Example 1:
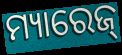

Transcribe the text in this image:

ମ୍ୟାରେଜ୍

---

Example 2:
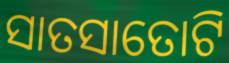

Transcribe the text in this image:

ସାତସାତୋଟି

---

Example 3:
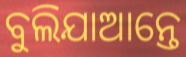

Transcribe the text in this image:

ବୁଲିଯାଆନ୍ତେ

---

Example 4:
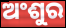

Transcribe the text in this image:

ଅଂଶୁର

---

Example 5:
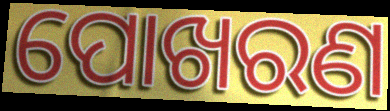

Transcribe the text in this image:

ପୋଖରଣ